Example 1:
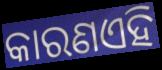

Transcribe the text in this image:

କାରଣଏହି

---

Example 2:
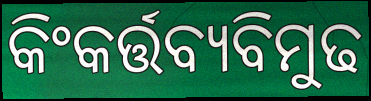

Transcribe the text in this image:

କିଂକର୍ତ୍ତବ୍ଯବିମୁଢ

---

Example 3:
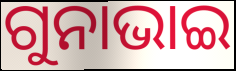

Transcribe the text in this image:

ଗୁନାଭାଇ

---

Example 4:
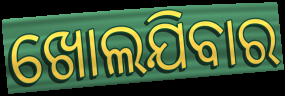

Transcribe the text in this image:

ଖୋଲଯିବାର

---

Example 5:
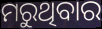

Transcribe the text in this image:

ମରୁଥିବାର